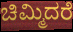
ಚಿಮ್ಮಿದರೆ